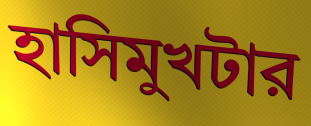
হাসিমুখটার